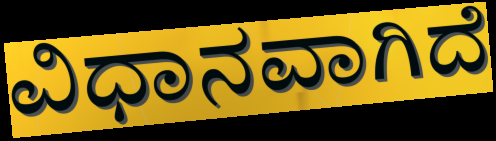
ವಿಧಾನವಾಗಿದೆ